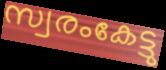
സ്വരംകേട്ടു